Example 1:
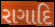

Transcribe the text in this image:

રાગાદિ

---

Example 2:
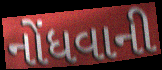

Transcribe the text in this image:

નોંધવાની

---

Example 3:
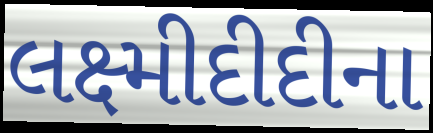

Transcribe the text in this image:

લક્ષ્મીદીદીના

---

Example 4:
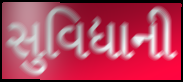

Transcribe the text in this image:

સુવિદ્યાની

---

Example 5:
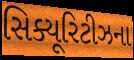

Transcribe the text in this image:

સિક્યૂરિટીઝના